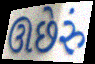
ઊછેરું